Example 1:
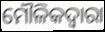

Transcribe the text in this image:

ମୌଳିକଦ୍ଵାରା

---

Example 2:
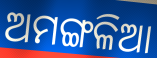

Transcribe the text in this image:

ଅମଙ୍ଗଳିଆ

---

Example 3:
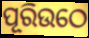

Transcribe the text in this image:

ପୂରିଉଠେ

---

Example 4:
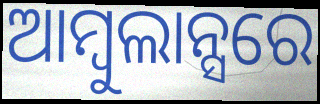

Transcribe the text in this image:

ଆମ୍ବୁଲାନ୍ସରେ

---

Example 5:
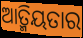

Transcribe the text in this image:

ଆତ୍ମିୟତାର